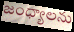
జంధ్యాలను